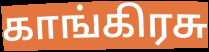
காங்கிரசு